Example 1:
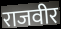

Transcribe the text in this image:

राजवीर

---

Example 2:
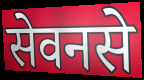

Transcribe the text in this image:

सेवनसे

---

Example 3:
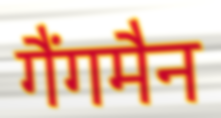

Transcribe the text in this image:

गैंगमैन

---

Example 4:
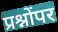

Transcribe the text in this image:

प्रश्नोंपर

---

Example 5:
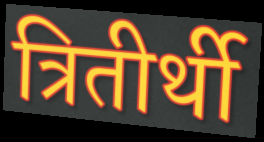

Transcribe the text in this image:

त्रितीर्थी